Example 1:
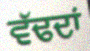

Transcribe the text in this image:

ਵੱਢਦਾਂ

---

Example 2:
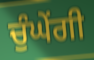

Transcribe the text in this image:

ਚੁੰਘੇਂਗੀ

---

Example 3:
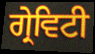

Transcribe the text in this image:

ਗ੍ਰੇਵਿਟੀ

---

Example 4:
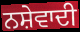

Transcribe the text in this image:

ਨਸ਼ੇਵਾਦੀ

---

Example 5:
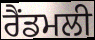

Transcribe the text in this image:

ਰੈਂਡਮਲੀ